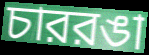
চাররঙা